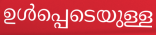
ഉൾപ്പെടെയുള്ള